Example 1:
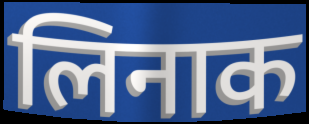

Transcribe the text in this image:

लिनाक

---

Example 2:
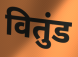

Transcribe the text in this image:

वितुंड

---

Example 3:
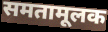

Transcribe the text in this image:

समतामूलक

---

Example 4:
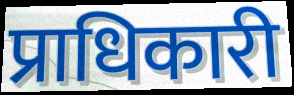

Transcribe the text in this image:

प्राधिकारी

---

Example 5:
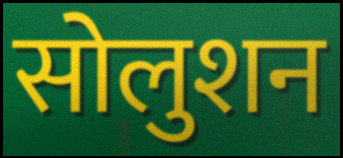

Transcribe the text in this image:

सोलुशन